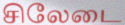
சிலேடை